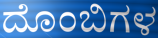
ದೊಂಬಿಗಳ